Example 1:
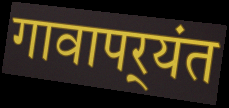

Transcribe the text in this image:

गावापर्यंत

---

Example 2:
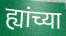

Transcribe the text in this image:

ह्यांच्या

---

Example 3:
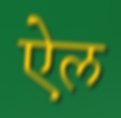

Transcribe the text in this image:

ऐल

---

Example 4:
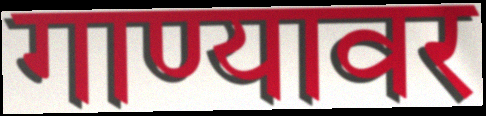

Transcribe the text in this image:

गाण्यावर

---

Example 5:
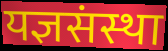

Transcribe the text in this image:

यज्ञसंस्था